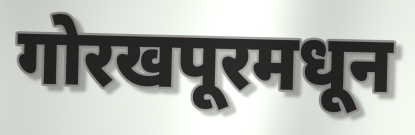
गोरखपूरमधून